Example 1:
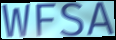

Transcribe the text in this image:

WFSA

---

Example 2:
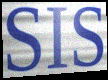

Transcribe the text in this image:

SIS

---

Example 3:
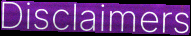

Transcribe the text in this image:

Disclaimers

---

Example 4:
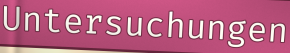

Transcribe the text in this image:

Untersuchungen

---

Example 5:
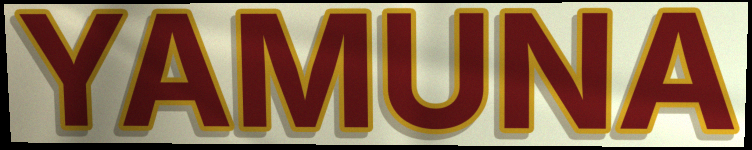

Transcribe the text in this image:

YAMUNA